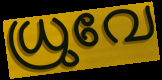
ധ്രുവേ